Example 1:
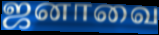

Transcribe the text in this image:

ஜனாவை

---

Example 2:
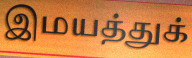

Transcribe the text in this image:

இமயத்துக்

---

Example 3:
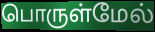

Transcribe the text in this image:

பொருள்மேல்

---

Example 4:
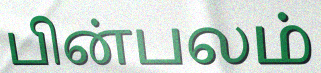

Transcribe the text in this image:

பின்பலம்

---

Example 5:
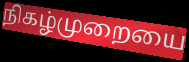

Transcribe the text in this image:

நிகழ்முறையை